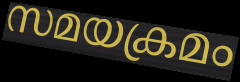
സമയക്രമം